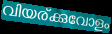
വിയര്ക്കുവോളം